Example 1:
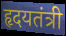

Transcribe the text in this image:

हृदयतंत्री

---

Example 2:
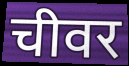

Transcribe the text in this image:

चीवर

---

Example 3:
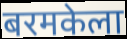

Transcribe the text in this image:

बरमकेला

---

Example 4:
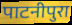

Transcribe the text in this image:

पाटनीपुरा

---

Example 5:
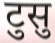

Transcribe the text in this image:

टुसु